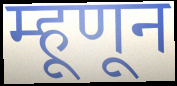
म्हूणून